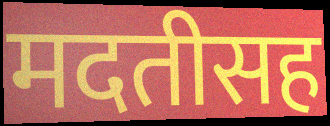
मदतीसह